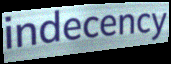
indecency